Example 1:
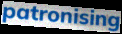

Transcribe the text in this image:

patronising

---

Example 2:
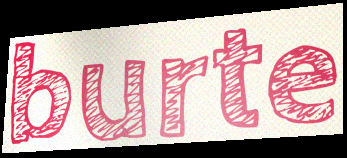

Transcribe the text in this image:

burte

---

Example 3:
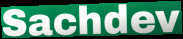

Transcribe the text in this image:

Sachdev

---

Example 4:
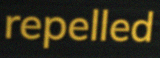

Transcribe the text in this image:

repelled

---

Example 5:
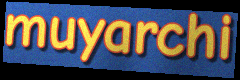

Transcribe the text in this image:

muyarchi